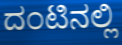
ದಂಟಿನಲ್ಲಿ